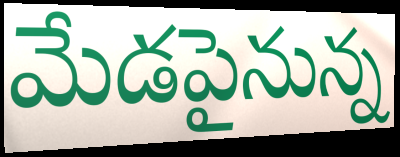
మేడపైనున్న